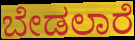
ಬೇಡಲಾರೆ